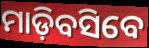
ମାଡ଼ିବସିବେ